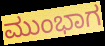
ಮುಂಭಾಗ